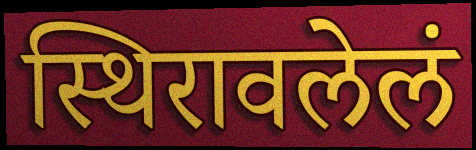
स्थिरावलेलं